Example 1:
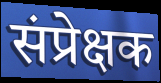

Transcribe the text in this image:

संप्रेक्षक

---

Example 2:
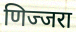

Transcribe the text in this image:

णिज्जरा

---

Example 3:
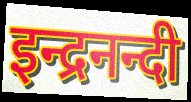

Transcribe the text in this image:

इन्द्रनन्दी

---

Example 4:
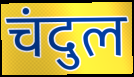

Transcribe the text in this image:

चंदुल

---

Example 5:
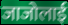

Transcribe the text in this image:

जाजोलाई